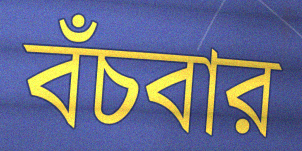
বঁচবার